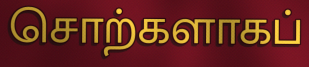
சொற்களாகப்